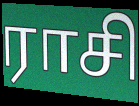
ராசி